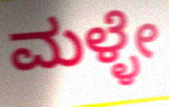
ಮಳ್ಳೇ